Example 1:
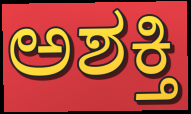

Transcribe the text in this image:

ಅಶಕ್ತಿ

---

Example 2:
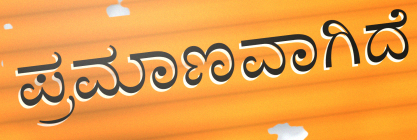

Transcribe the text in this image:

ಪ್ರಮಾಣವಾಗಿದೆ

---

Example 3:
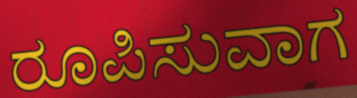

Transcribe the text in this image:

ರೂಪಿಸುವಾಗ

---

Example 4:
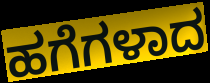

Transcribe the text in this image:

ಹಗೆಗಳಾದ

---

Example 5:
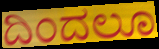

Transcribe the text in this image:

ದಿಂದಲೂ